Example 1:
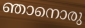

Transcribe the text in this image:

ഞാനൊരു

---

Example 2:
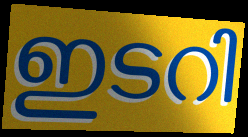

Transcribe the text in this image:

ഇടറി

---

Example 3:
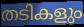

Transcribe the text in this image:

തടികളും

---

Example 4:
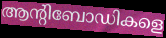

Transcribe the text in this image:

ആന്റിബോഡികളെ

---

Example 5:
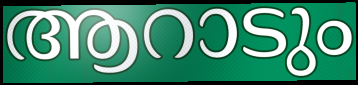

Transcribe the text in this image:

ആറാടും